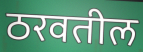
ठरवतील